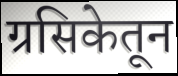
ग्रसिकेतून